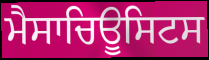
ਮੈਸਾਚਿਊਸਿਟਸ